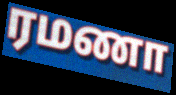
ரமணா